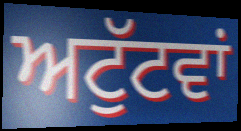
ਅਟੁੱਟਵਾਂ